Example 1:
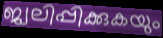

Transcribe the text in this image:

ജ്വലിപ്പിക്കുകയും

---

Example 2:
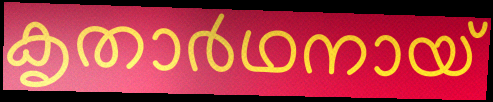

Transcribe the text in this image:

കൃതാർഥനായ്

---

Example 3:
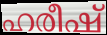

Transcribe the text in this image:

ഹരീഷ്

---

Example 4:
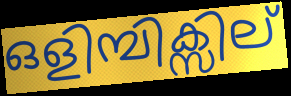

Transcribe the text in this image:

ഒളിമ്പിക്സില്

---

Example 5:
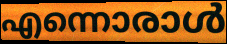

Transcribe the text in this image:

എന്നൊരാൾ